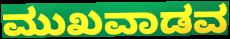
ಮುಖವಾಡವ